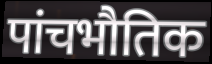
पांचभौतिक